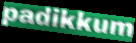
padikkum